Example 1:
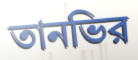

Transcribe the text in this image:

তানভির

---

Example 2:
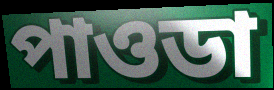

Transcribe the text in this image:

পাওডা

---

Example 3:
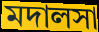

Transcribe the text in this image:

মদালসা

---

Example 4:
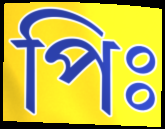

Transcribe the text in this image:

পিঃ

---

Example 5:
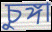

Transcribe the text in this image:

চুঙ্গা